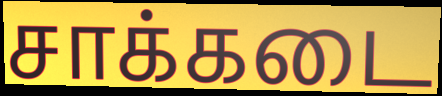
சாக்கடை